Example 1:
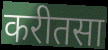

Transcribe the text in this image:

करीतसा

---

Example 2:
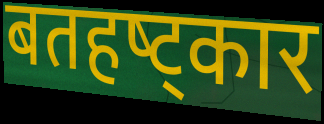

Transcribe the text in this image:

बतहष्ट्कार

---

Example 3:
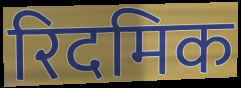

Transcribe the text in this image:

रिदमिक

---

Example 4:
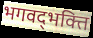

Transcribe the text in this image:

भगवद्भक्ति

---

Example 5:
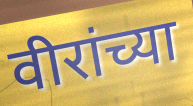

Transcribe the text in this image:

वीरांच्या